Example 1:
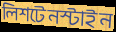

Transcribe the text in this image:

লিশটেনস্টাইন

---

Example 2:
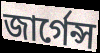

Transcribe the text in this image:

জার্গেন্স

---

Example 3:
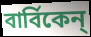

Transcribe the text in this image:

বার্বিকেন্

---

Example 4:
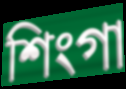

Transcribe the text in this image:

শিংগা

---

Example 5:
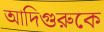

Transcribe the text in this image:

আদিগুরুকে